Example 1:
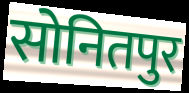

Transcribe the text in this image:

सोनितपुर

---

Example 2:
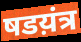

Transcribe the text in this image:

षडय़ंत्र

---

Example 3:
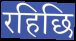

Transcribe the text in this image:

रहिछि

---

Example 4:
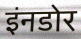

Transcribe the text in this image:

इंनडोर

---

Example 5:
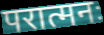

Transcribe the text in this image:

परात्मनः